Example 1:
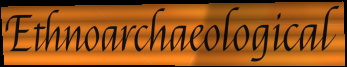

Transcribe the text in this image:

Ethnoarchaeological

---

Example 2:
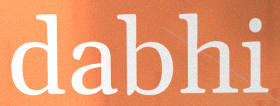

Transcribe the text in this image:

dabhi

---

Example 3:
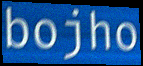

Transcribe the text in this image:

bojho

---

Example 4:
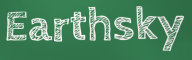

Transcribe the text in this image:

Earthsky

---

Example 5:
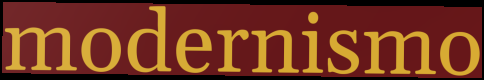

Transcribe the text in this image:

modernismo